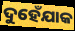
ଦୁହେଁଯାକ